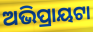
ଅଭିପ୍ରାୟଟା